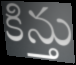
కిన్తు